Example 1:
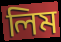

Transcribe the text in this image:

লিম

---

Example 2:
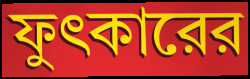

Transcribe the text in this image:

ফুৎকারের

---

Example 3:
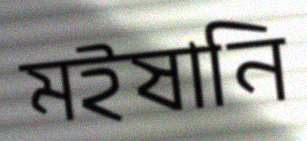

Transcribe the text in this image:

মইষানি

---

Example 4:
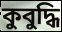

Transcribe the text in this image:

কুবুদ্ধি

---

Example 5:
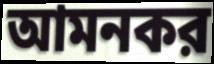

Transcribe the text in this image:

আমনকর